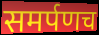
समर्पणच